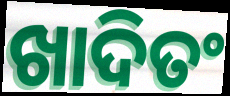
ଖାଦିତଂ